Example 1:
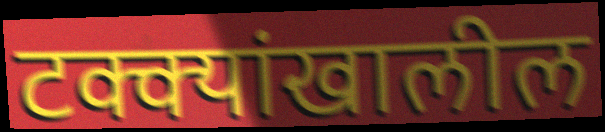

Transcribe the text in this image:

टक्क्यांखालील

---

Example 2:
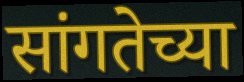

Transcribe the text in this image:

सांगतेच्या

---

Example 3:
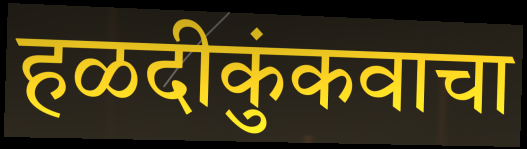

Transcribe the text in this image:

हळदीकुंकवाचा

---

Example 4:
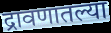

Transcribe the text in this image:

द्रावणातल्या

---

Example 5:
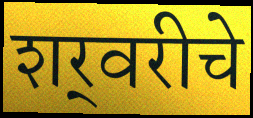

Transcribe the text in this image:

शर्वरीचे